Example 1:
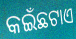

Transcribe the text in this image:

କଇଁଛଟାଏ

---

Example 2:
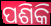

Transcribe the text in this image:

ପଶିକି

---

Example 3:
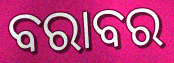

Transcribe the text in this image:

ବରାବର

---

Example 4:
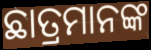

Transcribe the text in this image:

ଛାତ୍ରମାନଙ୍କ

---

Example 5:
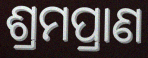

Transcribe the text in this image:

ଶ୍ରମପ୍ରାଣ